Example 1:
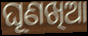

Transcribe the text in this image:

ଘୂଣଖିଆ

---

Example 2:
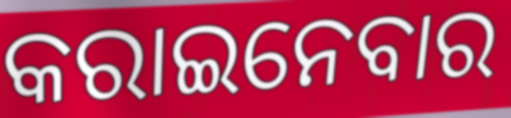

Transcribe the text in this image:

କରାଇନେବାର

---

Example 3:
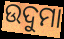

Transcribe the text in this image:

ଉଦୁମା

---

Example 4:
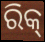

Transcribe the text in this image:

ରିକ୍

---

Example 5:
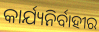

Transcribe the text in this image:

କାର୍ଯ୍ୟନିର୍ବାହୀର